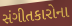
સંગીતકારોના